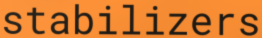
stabilizers